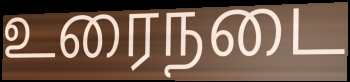
உரைநடை